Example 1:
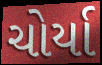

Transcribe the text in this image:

ચોર્યા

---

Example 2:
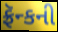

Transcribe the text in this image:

ફ્રૅન્કની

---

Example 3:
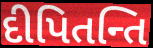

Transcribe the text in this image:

દીપિતન્તિ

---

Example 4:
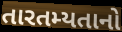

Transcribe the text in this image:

તારતમ્યતાનો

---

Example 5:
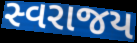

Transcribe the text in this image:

સ્વરાજય